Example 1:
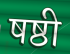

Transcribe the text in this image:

षष्ठी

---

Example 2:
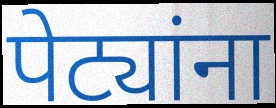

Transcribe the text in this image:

पेट्यांना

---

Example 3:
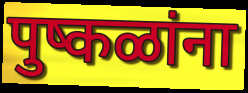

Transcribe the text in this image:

पुष्कळांना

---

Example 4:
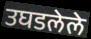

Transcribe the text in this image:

उघडलेले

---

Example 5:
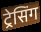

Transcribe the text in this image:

ट्रेसिंग